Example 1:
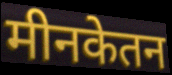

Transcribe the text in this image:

मीनकेतन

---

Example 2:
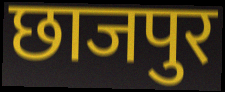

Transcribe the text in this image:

छाजपुर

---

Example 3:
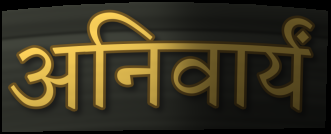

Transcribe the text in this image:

अनिवार्यं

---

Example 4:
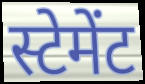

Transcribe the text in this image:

स्टेमेंट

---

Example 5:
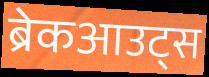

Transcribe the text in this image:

ब्रेकआउट्स